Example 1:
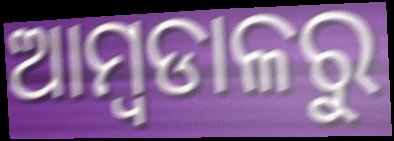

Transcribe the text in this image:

ଆମ୍ବଡାଳରୁ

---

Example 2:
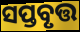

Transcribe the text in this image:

ସପ୍ତବୃତ୍ତ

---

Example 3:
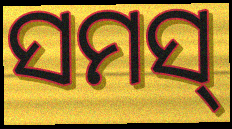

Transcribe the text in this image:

ସମସ୍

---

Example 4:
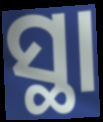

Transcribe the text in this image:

ସ୍ଥା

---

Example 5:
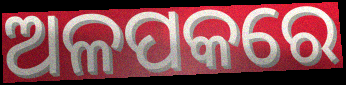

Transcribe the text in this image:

ଅଳପକରେ